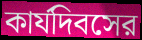
কার্যদিবসের